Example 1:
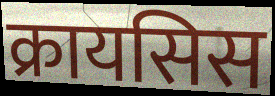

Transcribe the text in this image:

क्रायसिस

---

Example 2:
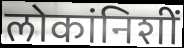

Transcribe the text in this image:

लोकांनिशीं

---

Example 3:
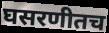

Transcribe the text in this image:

घसरणीतच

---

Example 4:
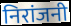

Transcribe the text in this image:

निरांजनी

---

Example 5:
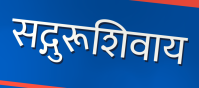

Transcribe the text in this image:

सद्गुरूशिवाय